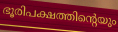
ഭൂരിപക്ഷത്തിന്റെയും